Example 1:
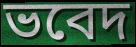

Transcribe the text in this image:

ভবেদ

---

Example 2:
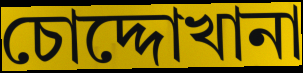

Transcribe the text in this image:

চোদ্দোখানা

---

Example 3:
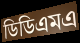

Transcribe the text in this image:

ডিডিএমএ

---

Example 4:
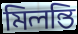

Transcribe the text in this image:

মিলন্তি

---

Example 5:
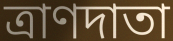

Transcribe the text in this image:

ত্রাণদাতা